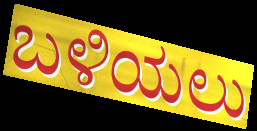
ಬಳಿಯಲು